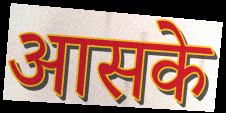
आसके